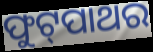
ଫୁଟ୍‌ପାଥର